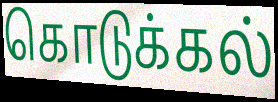
கொடுக்கல்